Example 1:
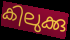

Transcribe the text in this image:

കിലുക്കു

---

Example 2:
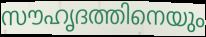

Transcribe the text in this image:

സൗഹൃദത്തിനെയും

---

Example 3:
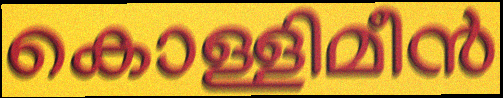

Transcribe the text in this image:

കൊള്ളിമീൻ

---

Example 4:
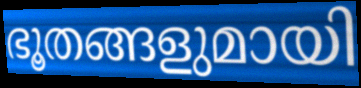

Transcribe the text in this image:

ഭൂതങ്ങളുമായി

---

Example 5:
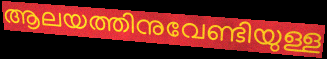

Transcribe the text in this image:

ആലയത്തിനുവേണ്ടിയുള്ള